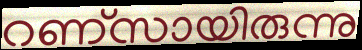
റണ്സായിരുന്നു